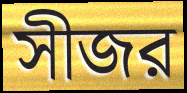
সীজর